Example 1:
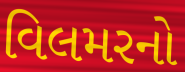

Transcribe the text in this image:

વિલમરનો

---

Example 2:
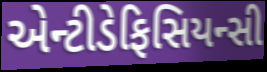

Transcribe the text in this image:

એન્ટીડેફિસિયન્સી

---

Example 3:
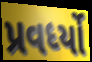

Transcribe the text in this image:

પ્રવર્ધ્યો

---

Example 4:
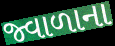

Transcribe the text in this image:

જ્વાળાના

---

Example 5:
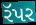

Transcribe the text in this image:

રૅપર